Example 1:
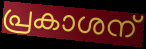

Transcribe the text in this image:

പ്രകാശന്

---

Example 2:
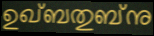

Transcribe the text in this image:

ഉഖ്ബതുബ്നു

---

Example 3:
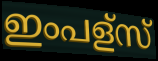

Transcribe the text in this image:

ഇംപള്സ്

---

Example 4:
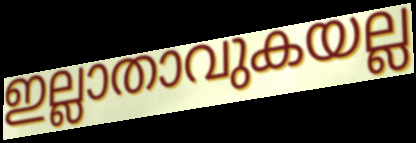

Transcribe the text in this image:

ഇല്ലാതാവുകയല്ല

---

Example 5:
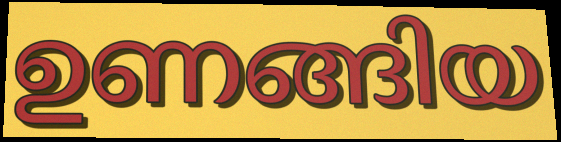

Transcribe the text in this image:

ഉണങ്ങിയ